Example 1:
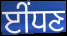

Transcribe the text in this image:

ਈਂਧਣ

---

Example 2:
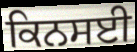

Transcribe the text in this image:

ਕਿਨਸਈ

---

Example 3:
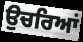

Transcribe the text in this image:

ਉਚਰਿਆਂ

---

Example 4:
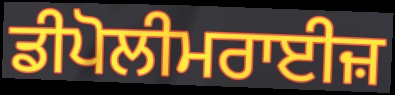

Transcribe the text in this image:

ਡੀਪੋਲੀਮਰਾਈਜ਼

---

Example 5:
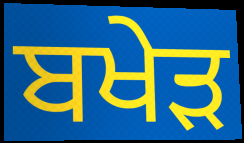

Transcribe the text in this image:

ਬਖੇੜ